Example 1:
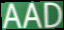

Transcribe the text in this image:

AAD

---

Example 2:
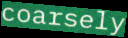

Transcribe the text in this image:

coarsely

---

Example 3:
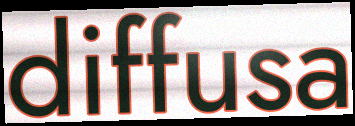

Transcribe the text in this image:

diffusa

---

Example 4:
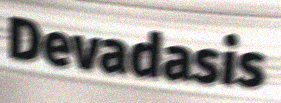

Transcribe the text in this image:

Devadasis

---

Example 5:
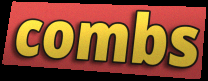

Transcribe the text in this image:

combs